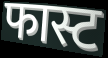
फास्ट